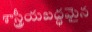
శాస్త్రీయబద్ధమైన